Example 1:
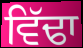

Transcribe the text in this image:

ਵਿੱਢਾ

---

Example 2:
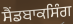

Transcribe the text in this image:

ਸੈਂਡਬਾਕਸਿੰਗ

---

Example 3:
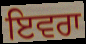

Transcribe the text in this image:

ਇਵਰਾ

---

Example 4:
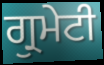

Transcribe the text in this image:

ਗ੍ਰੁਮੇਟੀ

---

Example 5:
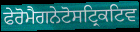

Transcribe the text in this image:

ਫੇਰੋਮੈਗਨੇਟੋਸਟ੍ਰਿਕਟਿਵ